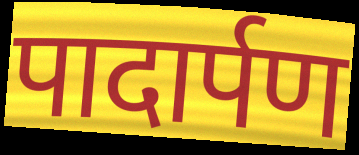
पादार्पण